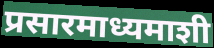
प्रसारमाध्यमाशी